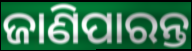
ଜାଣିପାରନ୍ତ